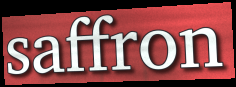
saffron